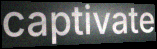
captivate